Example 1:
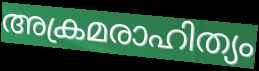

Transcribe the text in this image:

അക്രമരാഹിത്യം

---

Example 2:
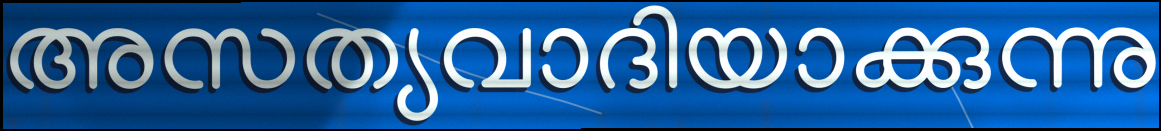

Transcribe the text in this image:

അസത്യവാദിയാക്കുന്നു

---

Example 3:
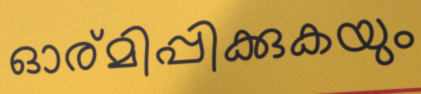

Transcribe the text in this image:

ഓര്മിപ്പിക്കുകയും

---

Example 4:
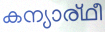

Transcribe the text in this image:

കന്യാര്ഥീ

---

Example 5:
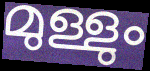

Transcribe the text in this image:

മുള്ളും